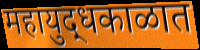
महायुद्धकाळात